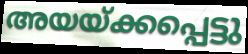
അയയ്ക്കപ്പെട്ടു